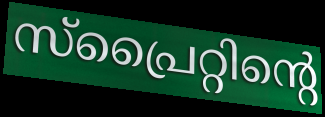
സ്പ്രൈറ്റിന്റെ